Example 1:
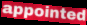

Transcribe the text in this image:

appointed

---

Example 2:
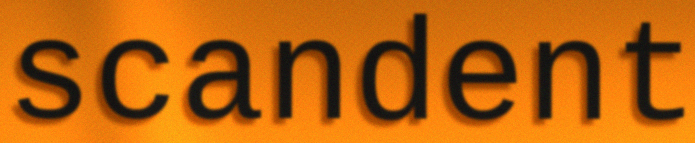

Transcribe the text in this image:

scandent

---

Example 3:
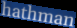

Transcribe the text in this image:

hathman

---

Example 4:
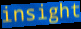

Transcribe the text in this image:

insight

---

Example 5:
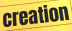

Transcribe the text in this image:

creation